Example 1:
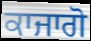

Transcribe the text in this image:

ਕਾਜਾਗੋ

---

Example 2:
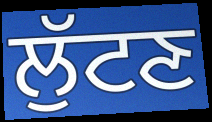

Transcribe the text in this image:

ਲੁੱਟਣ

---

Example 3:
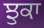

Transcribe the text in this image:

ਝੁਕਾ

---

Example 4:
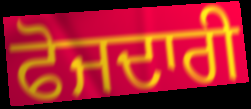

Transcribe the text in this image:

ਫੋਜਦਾਰੀ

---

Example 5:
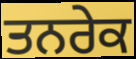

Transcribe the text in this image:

ਤਨਰੇਕ